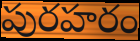
పురహరం